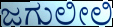
ಜಗುಲೀಲಿ